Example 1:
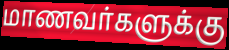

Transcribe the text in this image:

மாணவர்களுக்கு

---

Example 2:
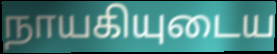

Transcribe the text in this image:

நாயகியுடைய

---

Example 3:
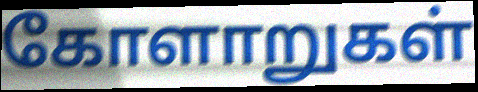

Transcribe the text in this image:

கோளாறுகள்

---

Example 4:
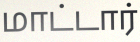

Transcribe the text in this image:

மாட்டார்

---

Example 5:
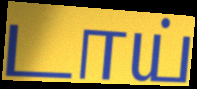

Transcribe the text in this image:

டாய்